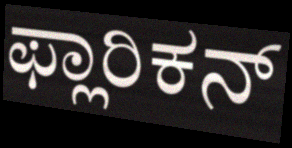
ಫ್ಲಾರಿಕನ್